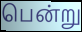
பென்று